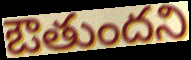
ఔతుందని